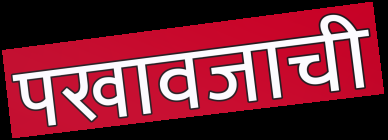
पखावजाची